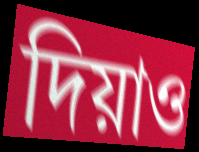
দিয়াও